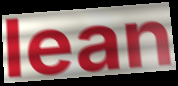
lean